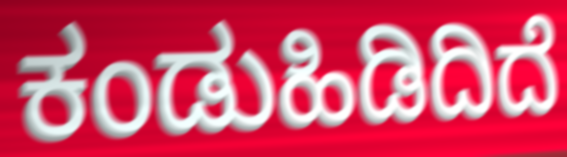
ಕಂಡುಹಿಡಿದಿದೆ